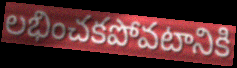
లభించకపోవటానికి